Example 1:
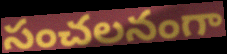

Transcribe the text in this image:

సంచలనంగా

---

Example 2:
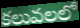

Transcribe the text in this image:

కలువలలో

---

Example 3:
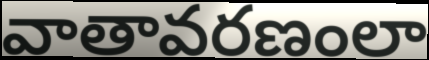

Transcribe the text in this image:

వాతావరణంలా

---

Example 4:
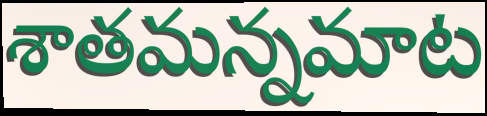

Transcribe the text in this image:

శాతమన్నమాట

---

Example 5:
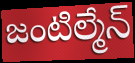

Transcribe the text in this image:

జంటిల్మేన్